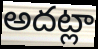
అదట్లా